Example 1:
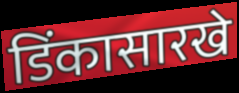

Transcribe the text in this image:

डिंकासारखे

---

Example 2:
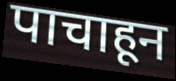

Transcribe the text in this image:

पाचाहून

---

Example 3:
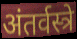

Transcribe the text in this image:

अंतर्वस्त्रे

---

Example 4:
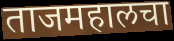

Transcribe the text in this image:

ताजमहालचा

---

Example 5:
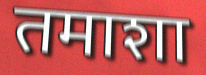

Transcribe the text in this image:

तमाशा